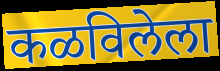
कळविलेला